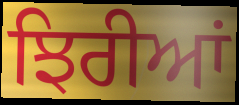
ਝਿਰੀਆਂ